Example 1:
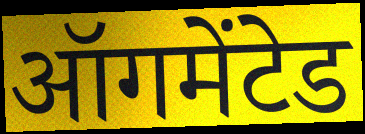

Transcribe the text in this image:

ऑगमेंटेड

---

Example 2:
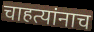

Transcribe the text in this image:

चाहत्यांनाच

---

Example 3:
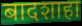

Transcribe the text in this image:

बादशाहा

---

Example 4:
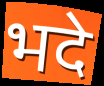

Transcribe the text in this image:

भदे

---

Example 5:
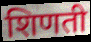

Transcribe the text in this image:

शिणती